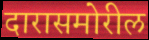
दारासमोरील